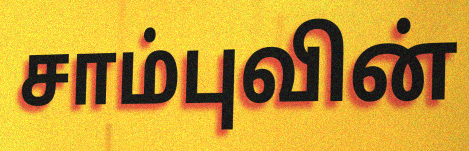
சாம்புவின்